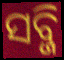
ସବ୍ଜି